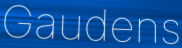
Gaudens